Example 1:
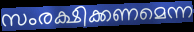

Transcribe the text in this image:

സംരക്ഷിക്കണമെന്ന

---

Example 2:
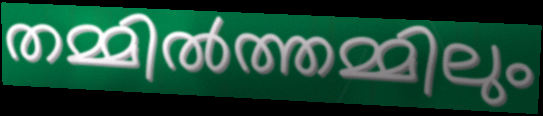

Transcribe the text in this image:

തമ്മിൽത്തമ്മിലും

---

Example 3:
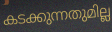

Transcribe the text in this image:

കടക്കുന്നതുമില്ല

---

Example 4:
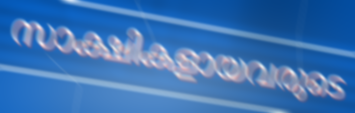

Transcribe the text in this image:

സാക്ഷികളായവരുടെ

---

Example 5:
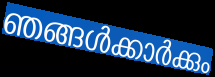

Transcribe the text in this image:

ഞങ്ങൾക്കാർക്കും